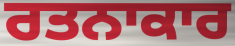
ਰਤਨਾਕਾਰ